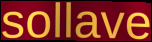
sollave